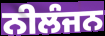
ਨੀਲੰਜਨ